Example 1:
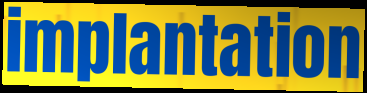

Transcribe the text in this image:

implantation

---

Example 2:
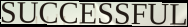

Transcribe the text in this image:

SUCCESSFUL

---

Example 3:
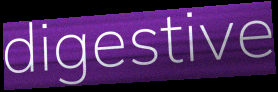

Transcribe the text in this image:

digestive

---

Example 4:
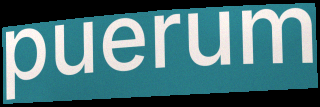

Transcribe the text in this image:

puerum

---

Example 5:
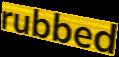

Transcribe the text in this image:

rubbed